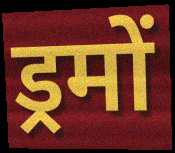
ड्रमों